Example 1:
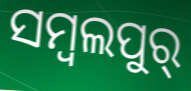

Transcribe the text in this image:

ସମ୍ବଲପୁର୍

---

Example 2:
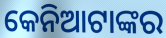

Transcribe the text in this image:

କେନିଆଟାଙ୍କର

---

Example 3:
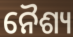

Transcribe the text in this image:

ନୈଶ୍ୟ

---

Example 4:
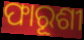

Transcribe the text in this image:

ଫାରୂଶୀ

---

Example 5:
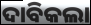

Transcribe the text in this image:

ଦାବିକଲା